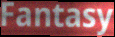
Fantasy